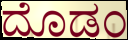
ದೊಡಂ